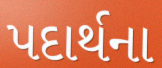
પદાર્થના